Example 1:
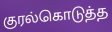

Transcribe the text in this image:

குரல்கொடுத்த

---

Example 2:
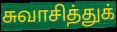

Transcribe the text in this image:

சுவாசித்துக்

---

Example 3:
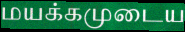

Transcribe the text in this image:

மயக்கமுடைய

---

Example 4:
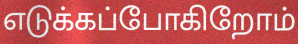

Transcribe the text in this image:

எடுக்கப்போகிறோம்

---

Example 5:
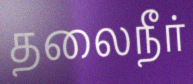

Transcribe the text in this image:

தலைநீர்